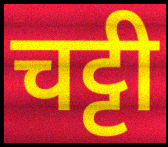
चट्टी